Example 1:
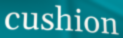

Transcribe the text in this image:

cushion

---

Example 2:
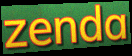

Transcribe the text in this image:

zenda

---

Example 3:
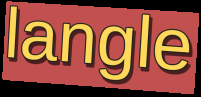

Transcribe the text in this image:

langle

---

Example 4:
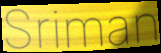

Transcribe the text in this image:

Sriman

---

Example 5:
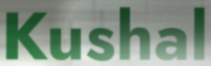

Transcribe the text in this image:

Kushal